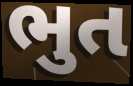
ભુત